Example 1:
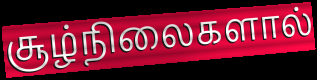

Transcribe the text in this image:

சூழ்நிலைகளால்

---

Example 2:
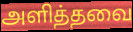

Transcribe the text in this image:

அளித்தவை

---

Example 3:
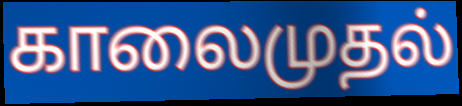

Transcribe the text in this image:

காலைமுதல்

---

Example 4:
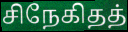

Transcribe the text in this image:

சிநேகிதத்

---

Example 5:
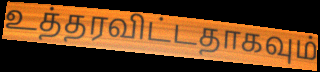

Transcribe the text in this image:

உத்தரவிட்டதாகவும்